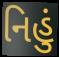
નિહું